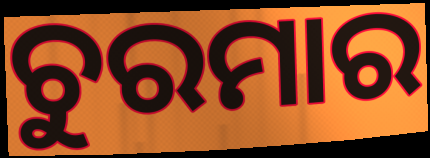
ଚୁରମାର